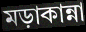
মড়াকান্না